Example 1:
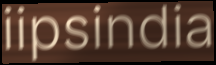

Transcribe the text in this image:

iipsindia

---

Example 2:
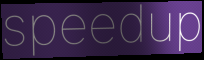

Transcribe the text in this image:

speedup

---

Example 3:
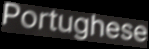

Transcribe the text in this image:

Portughese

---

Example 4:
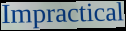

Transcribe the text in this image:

Impractical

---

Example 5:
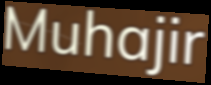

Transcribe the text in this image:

Muhajir